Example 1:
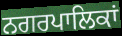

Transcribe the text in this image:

ਨਗਰਪਾਲਿਕਾਂ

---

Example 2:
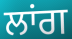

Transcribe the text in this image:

ਲਾਂਗ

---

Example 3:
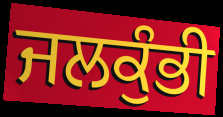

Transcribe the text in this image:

ਜਲਕੁੰਭੀ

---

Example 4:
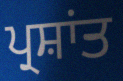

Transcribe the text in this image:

ਪ੍ਰਸ਼ਾਂਤ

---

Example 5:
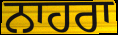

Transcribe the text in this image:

ਨਾਹਰਾ